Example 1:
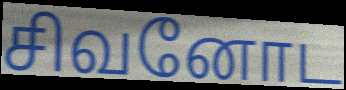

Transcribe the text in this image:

சிவனோட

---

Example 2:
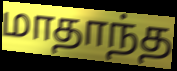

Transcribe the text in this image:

மாதாந்த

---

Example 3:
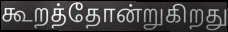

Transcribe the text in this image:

கூறத்தோன்றுகிறது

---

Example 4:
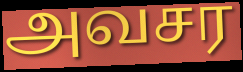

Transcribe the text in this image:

அவசர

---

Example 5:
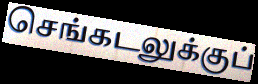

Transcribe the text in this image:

செங்கடலுக்குப்